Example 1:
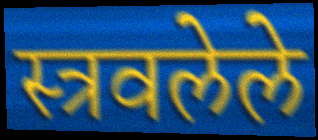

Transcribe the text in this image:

स्त्रवलेले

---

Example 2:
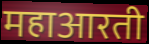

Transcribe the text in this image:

महाआरती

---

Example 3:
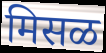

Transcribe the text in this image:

मिसळ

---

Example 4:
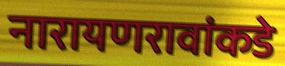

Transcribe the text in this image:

नारायणरावांकडे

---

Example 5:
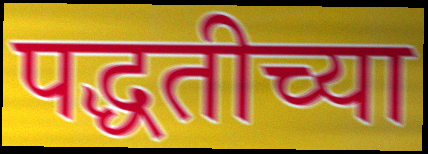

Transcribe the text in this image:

पद्धतीच्या